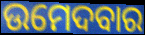
ଉମେଦବାର